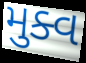
મુક્વ